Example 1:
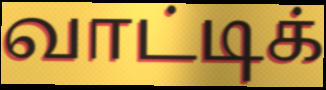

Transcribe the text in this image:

வாட்டிக்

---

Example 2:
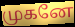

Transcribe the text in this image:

முகனே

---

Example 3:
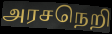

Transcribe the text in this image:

அரசநெறி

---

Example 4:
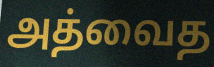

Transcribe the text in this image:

அத்வைத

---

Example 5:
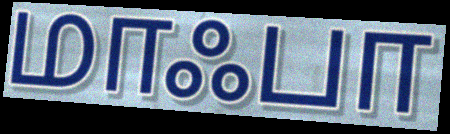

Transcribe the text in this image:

மாஃபா